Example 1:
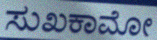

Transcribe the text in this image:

ಸುಖಕಾಮೋ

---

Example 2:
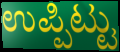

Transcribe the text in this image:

ಉಪ್ಪಿಟ್ಟು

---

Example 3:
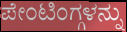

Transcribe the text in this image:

ಪೇಂಟಿಂಗ್ಗಳನ್ನು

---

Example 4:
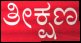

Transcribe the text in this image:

ತೀಕ್ಷಣ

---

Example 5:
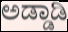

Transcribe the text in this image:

ಅಡ್ಡಾಡಿ